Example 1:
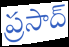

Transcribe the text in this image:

ప్రసాద్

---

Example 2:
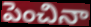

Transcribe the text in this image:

పెంచినా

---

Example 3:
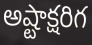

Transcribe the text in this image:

అష్టాక్షరిగ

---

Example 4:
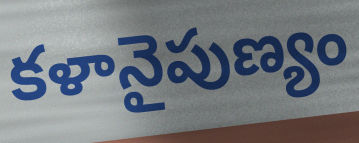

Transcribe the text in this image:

కళానైపుణ్యం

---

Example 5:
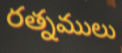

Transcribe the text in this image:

రత్నములు